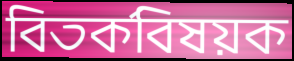
বিতর্কবিষয়ক